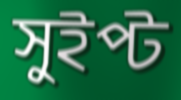
সুইপ্ট